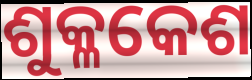
ଶୁକ୍ଳକେଶ